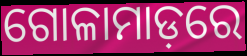
ଗୋଳାମାଡ଼ରେ